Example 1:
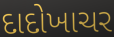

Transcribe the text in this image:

દાદોખાચર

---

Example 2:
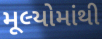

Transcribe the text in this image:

મૂલ્યોમાંથી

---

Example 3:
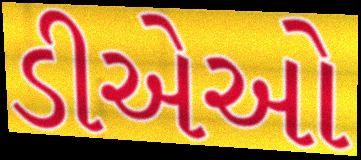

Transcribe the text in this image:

ડીએઓ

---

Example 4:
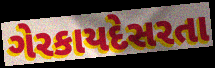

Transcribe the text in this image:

ગેરકાયદેસરતા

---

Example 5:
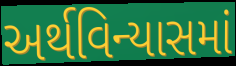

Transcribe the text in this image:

અર્થવિન્યાસમાં